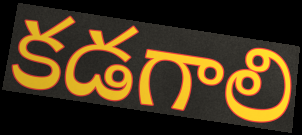
కడగాలి